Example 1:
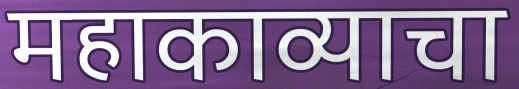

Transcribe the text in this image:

महाकाव्याचा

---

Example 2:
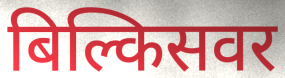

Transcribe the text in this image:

बिल्किसवर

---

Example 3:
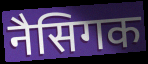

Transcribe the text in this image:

नैसिगक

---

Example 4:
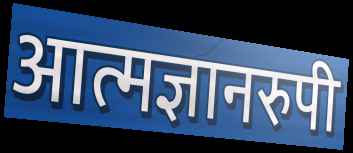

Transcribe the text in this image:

आत्मज्ञानरुपी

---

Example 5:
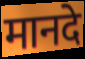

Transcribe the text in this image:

मानदे